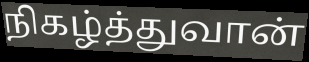
நிகழ்த்துவான்